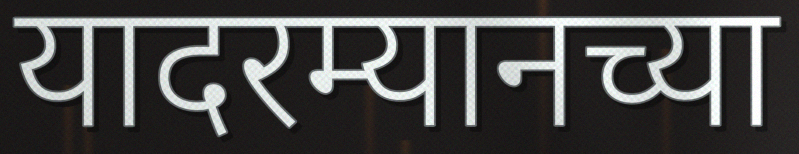
यादरम्यानच्या